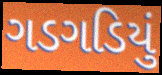
ગડગડિયું